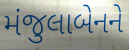
મંજુલાબેનને